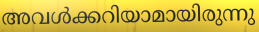
അവൾക്കറിയാമായിരുന്നു